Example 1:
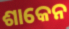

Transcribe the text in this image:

ଶାକେନ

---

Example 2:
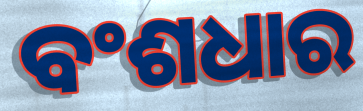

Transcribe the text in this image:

ବଂଶଧାର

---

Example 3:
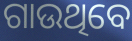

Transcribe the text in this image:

ଗାଉଥିବେ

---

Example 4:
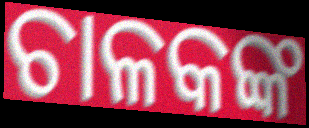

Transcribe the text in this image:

ଚାଳକଙ୍କ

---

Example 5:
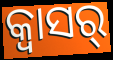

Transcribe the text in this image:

କ୍ୱାସର୍